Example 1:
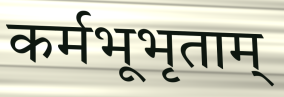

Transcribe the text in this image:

कर्मभूभृताम्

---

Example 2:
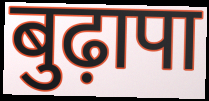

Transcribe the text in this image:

बुढ़ापा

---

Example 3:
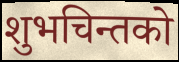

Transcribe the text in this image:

शुभचिन्तको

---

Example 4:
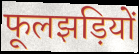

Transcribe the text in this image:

फूलझड़ियों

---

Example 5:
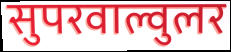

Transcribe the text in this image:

सुपरवाल्वुलर